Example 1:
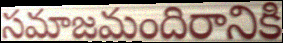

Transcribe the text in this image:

సమాజమందిరానికి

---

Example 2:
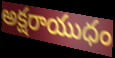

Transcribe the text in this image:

అక్షరాయుధం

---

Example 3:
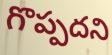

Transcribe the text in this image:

గొప్పదని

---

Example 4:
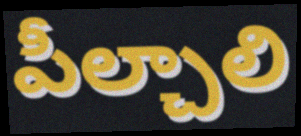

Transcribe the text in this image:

పీల్చాలి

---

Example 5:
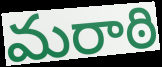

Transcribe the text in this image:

మరాఠి